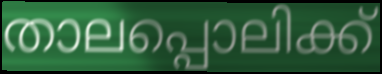
താലപ്പൊലിക്ക്